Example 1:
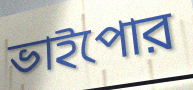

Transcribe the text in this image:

ভাইপোর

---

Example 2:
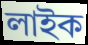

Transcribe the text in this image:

লাইক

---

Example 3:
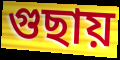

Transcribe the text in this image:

গুছায়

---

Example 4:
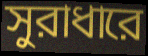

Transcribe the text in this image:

সুরাধারে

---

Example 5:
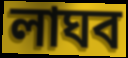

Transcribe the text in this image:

লাঘব